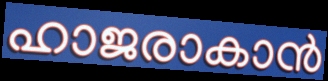
ഹാജരാകാൻ